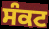
ਸੰਕਟ